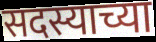
सदस्याच्या